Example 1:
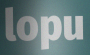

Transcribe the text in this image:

lopu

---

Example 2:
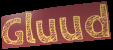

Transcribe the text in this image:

Gluud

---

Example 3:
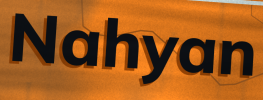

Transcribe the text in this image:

Nahyan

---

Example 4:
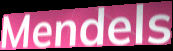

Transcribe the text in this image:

Mendels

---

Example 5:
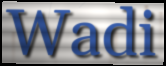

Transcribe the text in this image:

Wadi